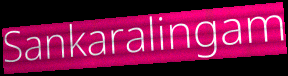
Sankaralingam